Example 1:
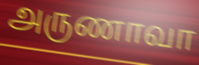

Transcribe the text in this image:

அருணாவா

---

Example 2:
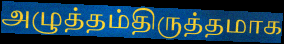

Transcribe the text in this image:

அழுத்தம்திருத்தமாக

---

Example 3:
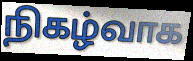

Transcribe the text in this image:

நிகழ்வாக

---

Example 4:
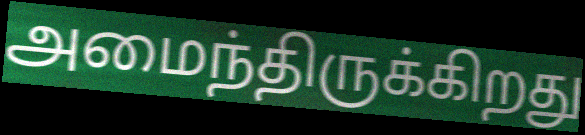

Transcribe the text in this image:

அமைந்திருக்கிறது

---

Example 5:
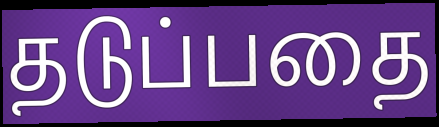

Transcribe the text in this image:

தடுப்பதை